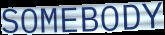
SOMEBODY